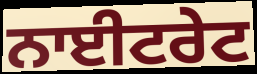
ਨਾਈਟਰੇਟ